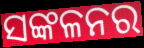
ସଙ୍କଳନର